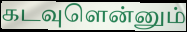
கடவுளென்னும்